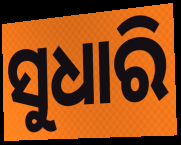
ସୁଧାରି